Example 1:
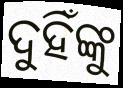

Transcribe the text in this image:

ଦୁହିଁଙ୍କୁ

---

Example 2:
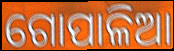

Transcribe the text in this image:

ଗୋପାଳିଆ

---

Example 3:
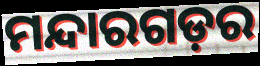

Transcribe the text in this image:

ମନ୍ଦାରଗଡ଼ର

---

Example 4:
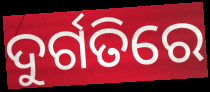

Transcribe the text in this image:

ଦୁର୍ଗତିରେ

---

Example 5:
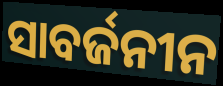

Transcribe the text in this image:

ସାବର୍ଜନୀନ